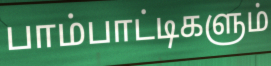
பாம்பாட்டிகளும்